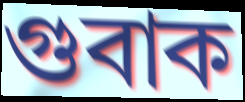
গুবাক